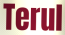
Terul